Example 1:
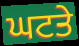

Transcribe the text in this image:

ਘਟਤੇ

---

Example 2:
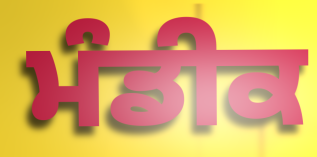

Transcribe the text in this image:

ਮੰਡੀਕ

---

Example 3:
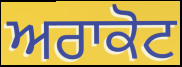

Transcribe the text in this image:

ਅਰਾਕੋਟ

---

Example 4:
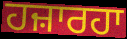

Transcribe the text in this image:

ਹਜ਼ਾਰਹਾ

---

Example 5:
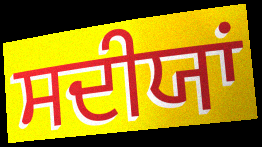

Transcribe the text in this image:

ਸਦੀਯਾਂ